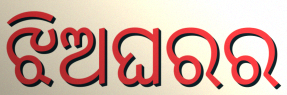
ଝିଅଘରର